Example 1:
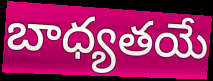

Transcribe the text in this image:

బాధ్యతయే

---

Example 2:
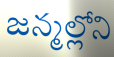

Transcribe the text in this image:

జన్మల్లోని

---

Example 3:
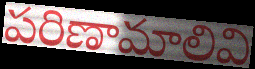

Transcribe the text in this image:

పరిణామాలివి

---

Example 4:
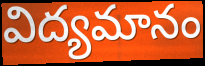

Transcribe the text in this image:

విద్యమానం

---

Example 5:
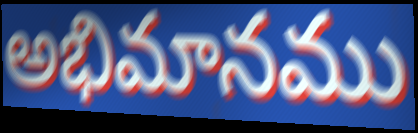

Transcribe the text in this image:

అభిమానము